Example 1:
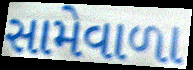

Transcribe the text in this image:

સામેવાળા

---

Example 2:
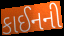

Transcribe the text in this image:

કાઈનની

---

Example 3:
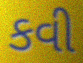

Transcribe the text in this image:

કવી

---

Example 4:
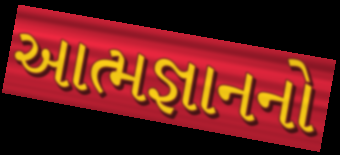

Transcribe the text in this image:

આત્મજ્ઞાનનો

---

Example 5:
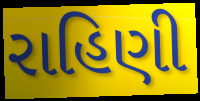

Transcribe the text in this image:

રાહિણી